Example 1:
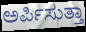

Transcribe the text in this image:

ಅರ್ಪಿಸುತ್ತಾ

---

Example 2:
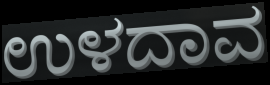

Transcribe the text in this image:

ಉಳದಾವ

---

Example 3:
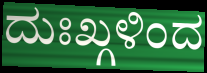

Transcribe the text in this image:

ದುಃಖ್ಗಳಿಂದ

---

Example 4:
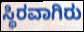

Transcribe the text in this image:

ಸ್ಥಿರವಾಗಿರು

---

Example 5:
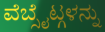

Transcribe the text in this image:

ವೆಬ್ಸೈಟ್ಗಳನ್ನು